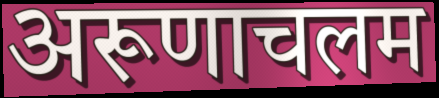
अरूणाचलम